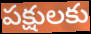
పక్షులకు